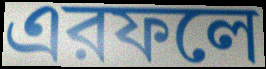
এরফলে